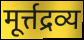
मूर्त्तद्रव्य